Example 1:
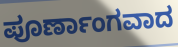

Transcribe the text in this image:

ಪೂರ್ಣಾಂಗವಾದ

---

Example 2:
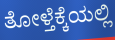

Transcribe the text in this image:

ತೋಳ್ತೆಕ್ಕೆಯಲ್ಲಿ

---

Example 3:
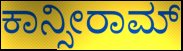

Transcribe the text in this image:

ಕಾನ್ಸೀರಾಮ್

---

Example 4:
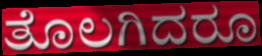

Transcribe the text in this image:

ತೊಲಗಿದರೂ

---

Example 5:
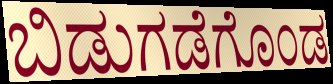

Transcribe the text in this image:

ಬಿಡುಗಡೆಗೊಂಡ